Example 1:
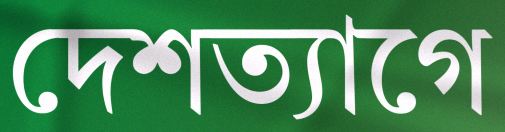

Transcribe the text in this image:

দেশত্যাগে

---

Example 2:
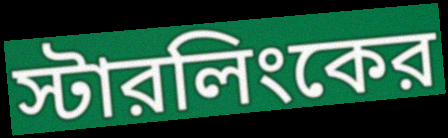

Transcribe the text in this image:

স্টারলিংকের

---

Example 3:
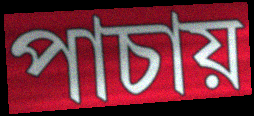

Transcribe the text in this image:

পাচায়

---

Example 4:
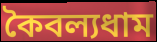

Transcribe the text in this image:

কৈবল্যধাম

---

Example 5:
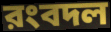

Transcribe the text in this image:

রংবদল